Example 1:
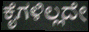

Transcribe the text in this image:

ಕೈಗಳಿಲ್ಲದೇ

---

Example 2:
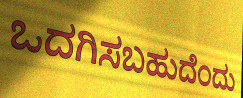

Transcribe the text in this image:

ಒದಗಿಸಬಹುದೆಂದು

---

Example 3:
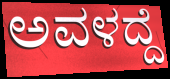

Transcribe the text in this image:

ಅವಳದ್ದೆ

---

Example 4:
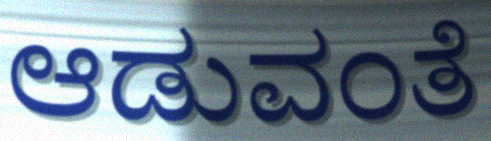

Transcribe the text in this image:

ಆಡುವಂತೆ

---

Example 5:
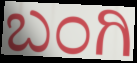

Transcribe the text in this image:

ಬಂಗಿ